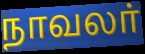
நாவலர்